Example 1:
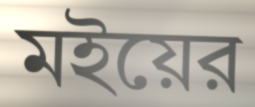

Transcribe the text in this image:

মইয়ের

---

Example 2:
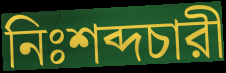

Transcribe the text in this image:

নিঃশব্দচারী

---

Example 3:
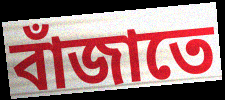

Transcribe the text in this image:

বাঁজাতে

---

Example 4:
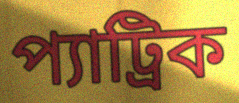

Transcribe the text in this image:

প্যাট্রিক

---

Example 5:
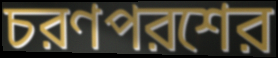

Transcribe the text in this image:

চরণপরশের